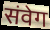
संवेग